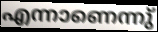
എന്നാണെന്നു്